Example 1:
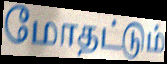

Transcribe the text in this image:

மோதட்டும்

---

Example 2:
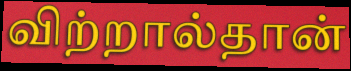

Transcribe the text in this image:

விற்றால்தான்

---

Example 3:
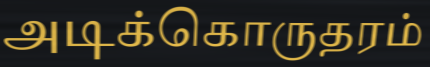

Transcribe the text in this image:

அடிக்கொருதரம்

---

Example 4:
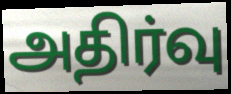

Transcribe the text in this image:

அதிர்வு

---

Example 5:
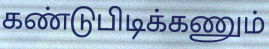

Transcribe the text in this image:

கண்டுபிடிக்கணும்